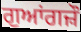
ਗੁਆਂਗਜ਼ੌ